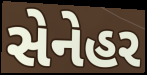
સેનેહર